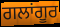
ਗਲਾਂਗੂਰ